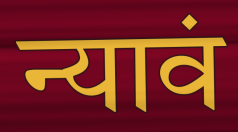
न्यावं